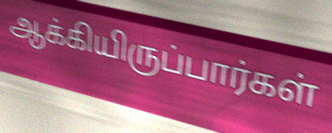
ஆக்கியிருப்பார்கள்